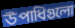
উপাধিগুলো